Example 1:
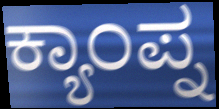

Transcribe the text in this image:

ಕ್ಯಾಂಪ್ನ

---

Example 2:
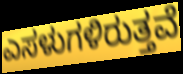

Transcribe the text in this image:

ಎಸಳುಗಳಿರುತ್ತವೆ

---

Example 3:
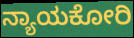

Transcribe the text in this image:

ನ್ಯಾಯಕೋರಿ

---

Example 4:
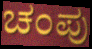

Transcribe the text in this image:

ಚಂಪು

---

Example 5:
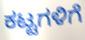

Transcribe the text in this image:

ಕಟ್ಟಗಳಿಗೆ